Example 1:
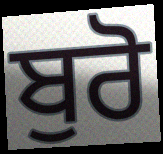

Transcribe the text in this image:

ਬੁਰੋ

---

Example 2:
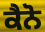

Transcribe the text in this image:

ਕੈਨੋ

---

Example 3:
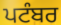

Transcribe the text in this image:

ਪਟੰਬਰ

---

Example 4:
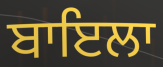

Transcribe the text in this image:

ਬਾਇਲਾ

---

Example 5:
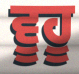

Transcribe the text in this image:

ਵੂਹੂ